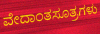
ವೇದಾಂತಸೂತ್ರಗಳು